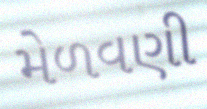
મેળવણી